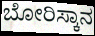
ಬೋರಿಸ್ಕಾನ